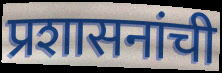
प्रशासनांची